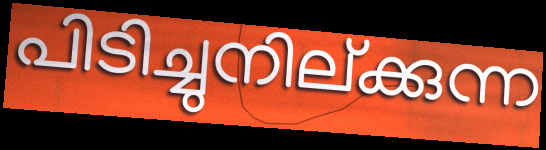
പിടിച്ചുനില്ക്കുന്ന